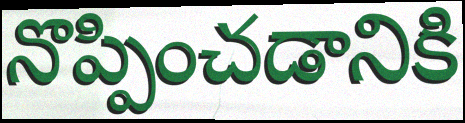
నొప్పించడానికి